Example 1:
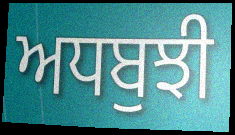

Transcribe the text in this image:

ਅਧਬੁਝੀ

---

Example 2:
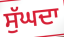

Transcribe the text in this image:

ਸੁੱਘਦਾ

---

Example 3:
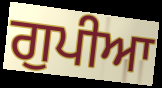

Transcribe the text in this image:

ਗੁਪੀਆ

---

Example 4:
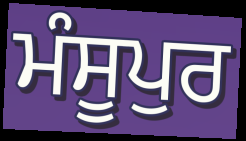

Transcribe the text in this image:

ਮੰਸੂਪੁਰ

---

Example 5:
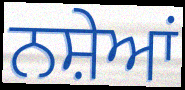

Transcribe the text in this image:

ਨਸ਼ੇਆਂ